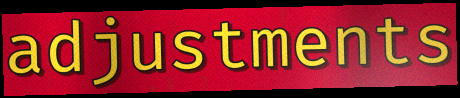
adjustments